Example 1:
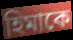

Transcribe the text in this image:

হিমাকে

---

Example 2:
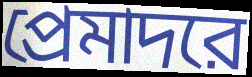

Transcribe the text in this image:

প্রেমাদরে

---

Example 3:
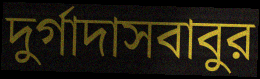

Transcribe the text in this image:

দুর্গাদাসবাবুর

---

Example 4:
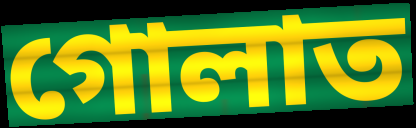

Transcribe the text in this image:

গোলাত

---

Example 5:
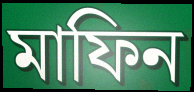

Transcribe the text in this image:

মাফিন